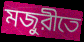
মজুরীতে